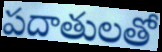
పదాతులతో